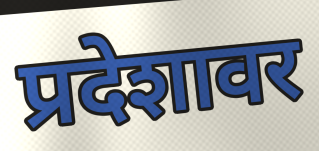
प्रदेशावर